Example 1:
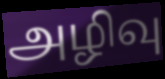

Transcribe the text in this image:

அழிவு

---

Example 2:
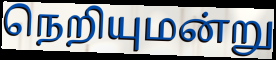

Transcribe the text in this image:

நெறியுமன்று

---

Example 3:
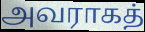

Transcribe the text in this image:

அவராகத்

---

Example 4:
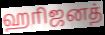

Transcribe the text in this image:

ஹரிஜனத்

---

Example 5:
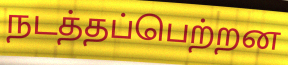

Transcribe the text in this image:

நடத்தப்பெற்றன